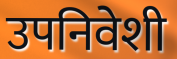
उपनिवेशी